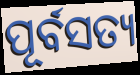
ପୂର୍ବସତ୍ୟ